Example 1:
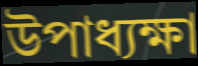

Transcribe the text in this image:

উপাধ্যক্ষা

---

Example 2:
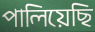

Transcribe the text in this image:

পালিয়েছি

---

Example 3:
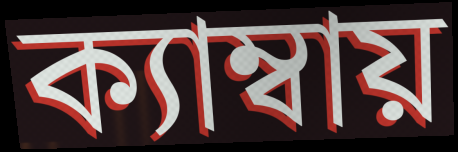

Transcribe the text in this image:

ক্যাম্বায়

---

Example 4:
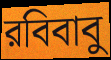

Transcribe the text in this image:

রবিবাবু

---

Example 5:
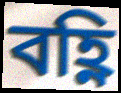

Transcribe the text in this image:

বহ্ণি